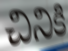
చినికి